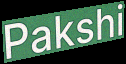
Pakshi